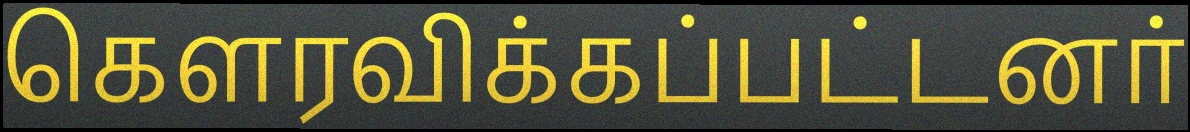
கௌரவிக்கப்பட்டனர்